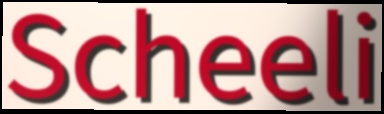
Scheeli